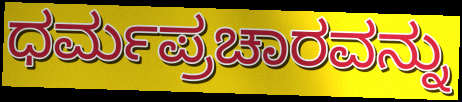
ಧರ್ಮಪ್ರಚಾರವನ್ನು